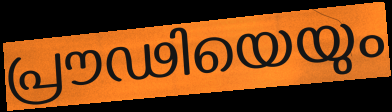
പ്രൗഢിയെയും